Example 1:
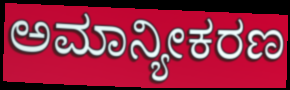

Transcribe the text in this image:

ಅಮಾನ್ಯೀಕರಣ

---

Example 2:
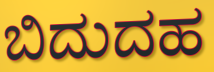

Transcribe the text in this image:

ಬಿದುದಹ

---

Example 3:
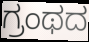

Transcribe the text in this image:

ಗ್ರಂಥದ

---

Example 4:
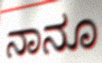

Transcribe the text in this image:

ನಾನೂ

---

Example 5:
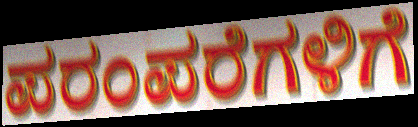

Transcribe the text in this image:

ಪರಂಪರೆಗಳಿಗೆ